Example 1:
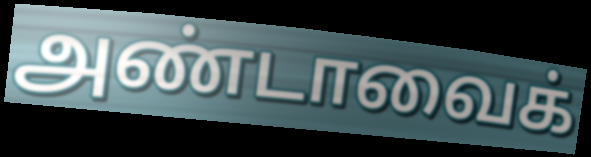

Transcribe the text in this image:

அண்டாவைக்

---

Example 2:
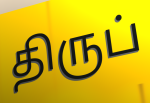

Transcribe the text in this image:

திருப்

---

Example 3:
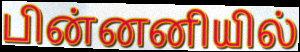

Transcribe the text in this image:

பின்னனியில்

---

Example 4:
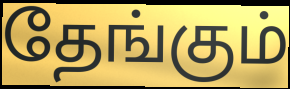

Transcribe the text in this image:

தேங்கும்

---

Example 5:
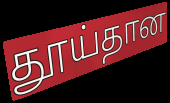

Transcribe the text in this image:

தூய்தான